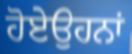
ਹੋਏਉਹਨਾਂ